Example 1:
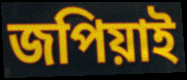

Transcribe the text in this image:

জপিয়াই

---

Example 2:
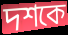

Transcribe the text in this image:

দশকে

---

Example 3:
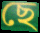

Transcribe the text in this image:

ছে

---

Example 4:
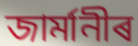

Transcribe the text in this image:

জাৰ্মানীৰ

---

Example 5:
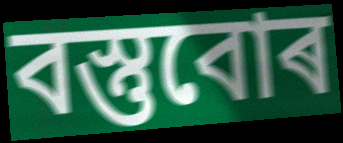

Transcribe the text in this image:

বস্তুবোৰ